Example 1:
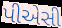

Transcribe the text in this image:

પીએસી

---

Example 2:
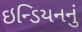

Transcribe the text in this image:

ઇન્ડિયનનું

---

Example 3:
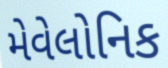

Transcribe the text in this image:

મેવેલોનિક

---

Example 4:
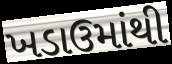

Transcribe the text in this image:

ખડાઉમાંથી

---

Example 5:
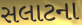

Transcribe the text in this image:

સલાટના